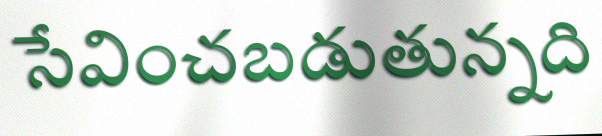
సేవించబడుతున్నది